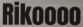
Rikoooo